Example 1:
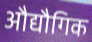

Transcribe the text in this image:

औद्यौगिक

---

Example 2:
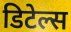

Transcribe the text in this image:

डिटेल्स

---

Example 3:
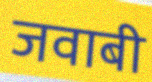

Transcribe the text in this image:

जवाबी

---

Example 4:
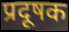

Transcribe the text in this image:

प्रदूषक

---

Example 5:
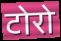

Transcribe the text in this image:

टोरो